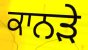
ਕਾਨੜੇ